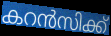
കറൻസിക്ക്